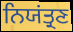
ਨਿਯਂਤ੍ਰਣ